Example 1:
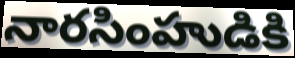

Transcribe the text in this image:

నారసింహుడికి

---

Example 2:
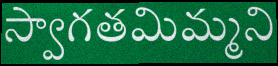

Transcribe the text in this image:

స్వాగతమిమ్మని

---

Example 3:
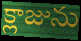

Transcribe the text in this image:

క్లాజును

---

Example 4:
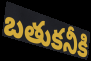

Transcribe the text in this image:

బతుకనీకి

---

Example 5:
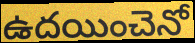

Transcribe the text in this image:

ఉదయించెనో